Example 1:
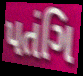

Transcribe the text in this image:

પતંગિ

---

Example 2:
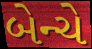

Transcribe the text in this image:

બેન્ચે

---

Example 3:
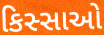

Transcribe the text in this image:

કિસ્સાઓ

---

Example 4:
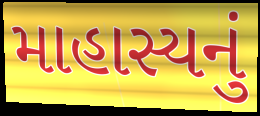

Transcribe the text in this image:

માહાસ્યનું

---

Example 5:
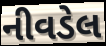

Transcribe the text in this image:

નીવડેલ